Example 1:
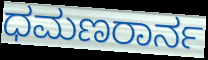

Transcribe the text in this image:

ಧಮಣರಾರ್ನ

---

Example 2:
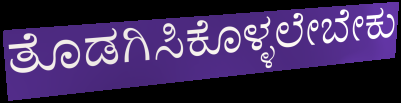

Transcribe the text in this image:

ತೊಡಗಿಸಿಕೊಳ್ಳಲೇಬೇಕು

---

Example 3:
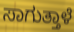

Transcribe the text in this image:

ಸಾಗುತ್ತಾಳೆ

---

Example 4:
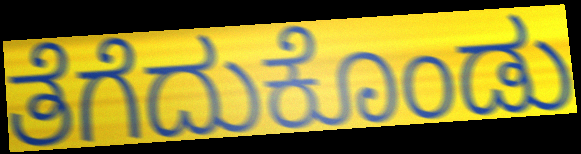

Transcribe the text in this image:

ತೆಗೆದುಕೊಂಡು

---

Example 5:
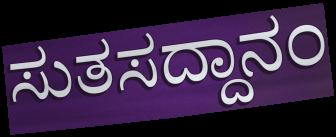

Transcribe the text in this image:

ಸುತಸದ್ದಾನಂ